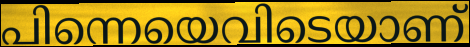
പിന്നെയെവിടെയാണ്